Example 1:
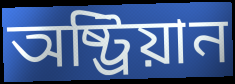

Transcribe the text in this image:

অষ্ট্ৰিয়ান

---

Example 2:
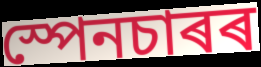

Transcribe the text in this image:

স্পেনচাৰৰ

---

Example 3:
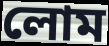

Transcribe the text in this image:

লোম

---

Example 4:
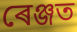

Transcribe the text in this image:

ৰেঞ্জত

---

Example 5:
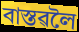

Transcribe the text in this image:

বাস্তৱলৈ